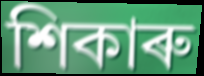
শিকাৰু